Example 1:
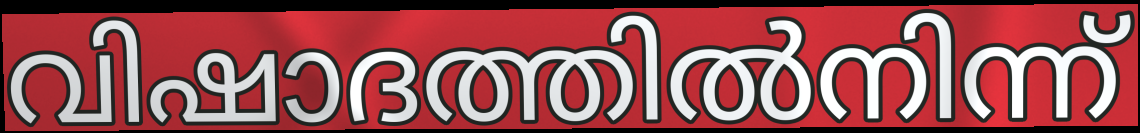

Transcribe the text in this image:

വിഷാദത്തിൽനിന്ന്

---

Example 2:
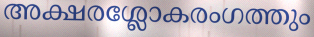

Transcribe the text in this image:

അക്ഷരശ്ലോകരംഗത്തും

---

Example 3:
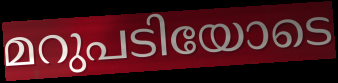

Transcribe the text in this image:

മറുപടിയോടെ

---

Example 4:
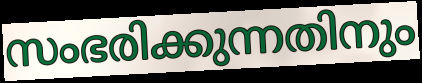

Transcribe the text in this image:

സംഭരിക്കുന്നതിനും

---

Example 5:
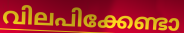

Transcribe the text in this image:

വിലപിക്കേണ്ടാ